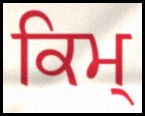
ਕਿਮ੍